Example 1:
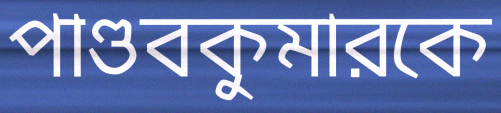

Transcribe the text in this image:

পাণ্ডবকুমারকে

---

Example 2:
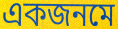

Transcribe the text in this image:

একজনমে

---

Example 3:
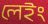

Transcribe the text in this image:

লেইং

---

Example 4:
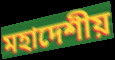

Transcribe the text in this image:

মহাদেশীয়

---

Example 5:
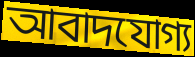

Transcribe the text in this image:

আবাদযোগ্য